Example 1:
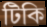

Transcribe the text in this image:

টিকি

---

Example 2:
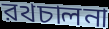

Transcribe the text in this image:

রথচালনা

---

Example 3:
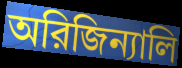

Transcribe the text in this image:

অরিজিন্যালি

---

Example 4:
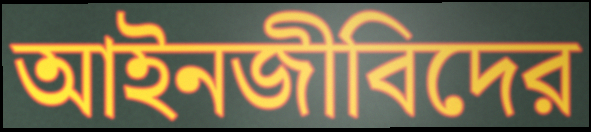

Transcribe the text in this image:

আইনজীবিদের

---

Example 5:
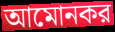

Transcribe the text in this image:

আমোনকর